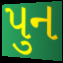
પુન